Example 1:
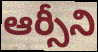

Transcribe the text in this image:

ఆర్సీని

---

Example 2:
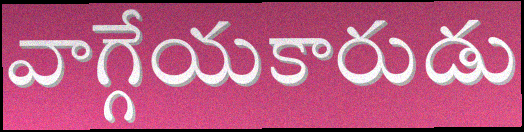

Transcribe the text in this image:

వాగ్గేయకారుడు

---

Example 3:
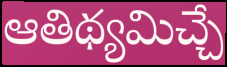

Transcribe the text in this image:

ఆతిథ్యమిచ్చే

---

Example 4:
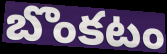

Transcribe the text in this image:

బొంకటం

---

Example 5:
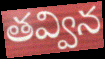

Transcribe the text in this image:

తవ్విన